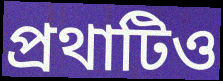
প্রথাটিও